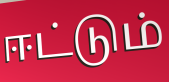
ஈட்டும்